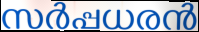
സർപ്പധരൻ